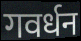
गवर्धन